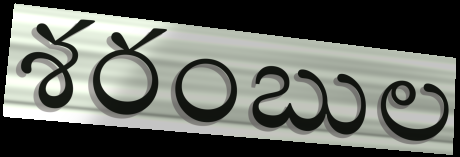
శరంబుల